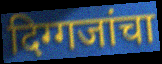
दिग्गजांचा